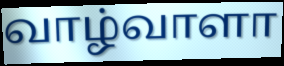
வாழ்வாளா